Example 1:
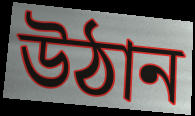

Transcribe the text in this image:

উঠান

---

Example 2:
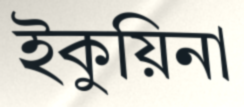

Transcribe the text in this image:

ইকুয়িনা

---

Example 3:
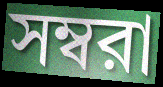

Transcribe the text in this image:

সম্বরা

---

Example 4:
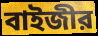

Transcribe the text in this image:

বাইজীর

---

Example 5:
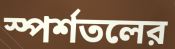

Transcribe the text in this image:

স্পর্শতলের